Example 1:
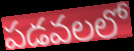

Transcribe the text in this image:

పడవలలో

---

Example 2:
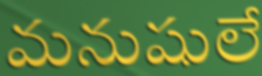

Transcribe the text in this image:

మనుషులే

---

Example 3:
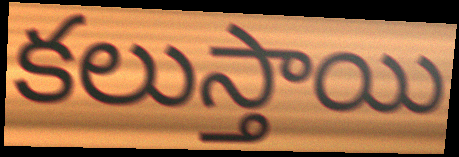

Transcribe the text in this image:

కలుస్తాయి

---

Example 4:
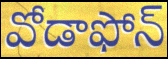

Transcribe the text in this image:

వోడాఫోన్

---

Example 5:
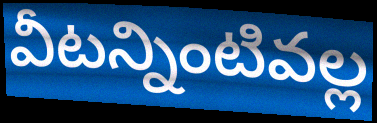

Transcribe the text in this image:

వీటన్నింటివల్ల